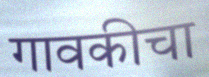
गावकीचा